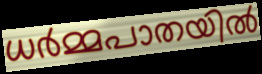
ധർമ്മപാതയിൽ